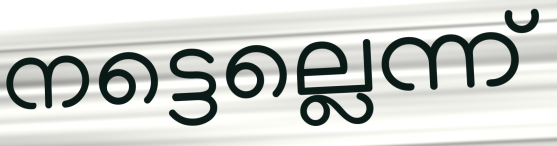
നട്ടെല്ലെന്ന്